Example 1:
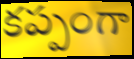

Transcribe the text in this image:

కప్పంగా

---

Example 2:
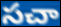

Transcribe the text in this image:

సచా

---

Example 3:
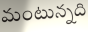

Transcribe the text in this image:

మంటున్నది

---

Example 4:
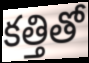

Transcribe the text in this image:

కత్తితో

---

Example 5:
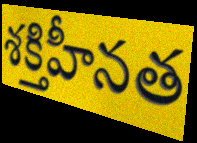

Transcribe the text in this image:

శక్తిహీనత